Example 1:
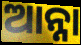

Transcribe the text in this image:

ଆନ୍ନା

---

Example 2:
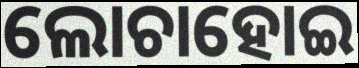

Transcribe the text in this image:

ଲୋଚାହୋଇ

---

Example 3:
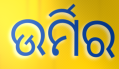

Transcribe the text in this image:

ଉର୍ମିର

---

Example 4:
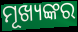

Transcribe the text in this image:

ମୂଖ୍ୟଙ୍କର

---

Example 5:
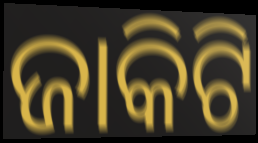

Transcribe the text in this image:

ଜାକିଟି